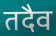
तदैव